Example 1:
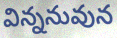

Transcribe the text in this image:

విన్ననువున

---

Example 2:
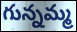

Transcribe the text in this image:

గున్నమ్మ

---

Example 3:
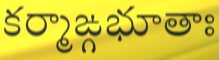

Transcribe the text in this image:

కర్మాఙ్గభూతాః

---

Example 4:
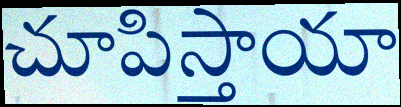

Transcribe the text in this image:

చూపిస్తాయా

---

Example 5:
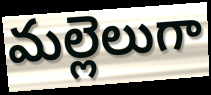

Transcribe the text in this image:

మల్లెలుగా